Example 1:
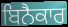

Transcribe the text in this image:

ਬਿਨੈਕਾਰ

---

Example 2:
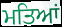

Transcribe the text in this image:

ਮਤਿਆਂ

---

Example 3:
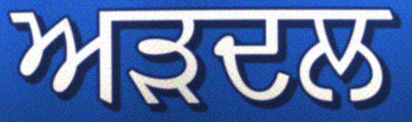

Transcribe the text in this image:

ਅੜਦਲ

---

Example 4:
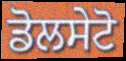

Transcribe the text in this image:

ਡੋਲਸੇਟੋ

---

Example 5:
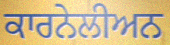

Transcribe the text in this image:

ਕਾਰਨੇਲੀਅਨ